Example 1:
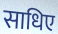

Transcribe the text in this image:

साधिए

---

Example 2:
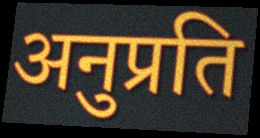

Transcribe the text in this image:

अनुप्रति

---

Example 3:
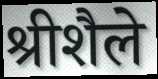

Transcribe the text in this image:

श्रीशैले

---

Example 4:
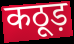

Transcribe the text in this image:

कठूड़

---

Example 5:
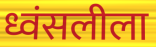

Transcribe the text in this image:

ध्वंसलीला